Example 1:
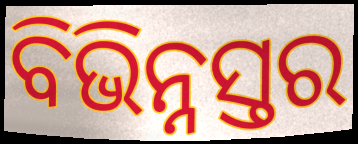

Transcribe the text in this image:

ବିଭିନ୍ନସ୍ତର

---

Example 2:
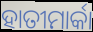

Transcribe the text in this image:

ହାତୀମାର୍କା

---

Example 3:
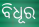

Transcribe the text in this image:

ବିଧୂର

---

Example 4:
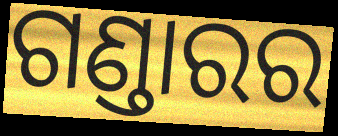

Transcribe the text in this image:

ଗଣ୍ଡାରର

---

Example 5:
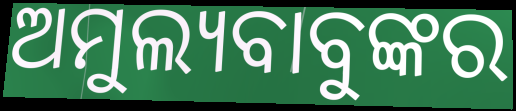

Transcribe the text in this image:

ଅମୁଲ୍ୟବାବୁଙ୍କର